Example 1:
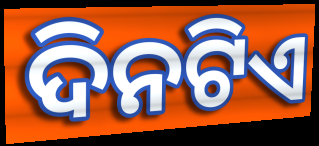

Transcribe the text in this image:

ଦିନଟିଏ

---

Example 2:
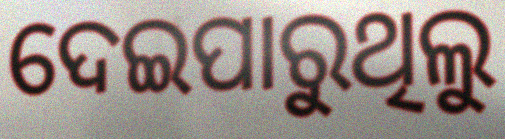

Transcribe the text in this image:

ଦେଇପାରୁଥିଲୁ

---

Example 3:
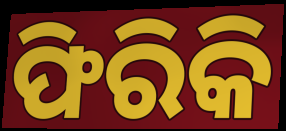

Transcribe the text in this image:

ଫିରିକି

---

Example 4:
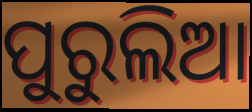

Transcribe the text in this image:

ପୁରୁଲିଆ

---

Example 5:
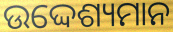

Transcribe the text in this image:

ଉଦ୍ଦେଶ୍ୟମାନ